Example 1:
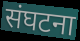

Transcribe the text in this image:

संघटना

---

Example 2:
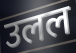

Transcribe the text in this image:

उलल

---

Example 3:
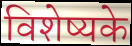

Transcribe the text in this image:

विशेष्यके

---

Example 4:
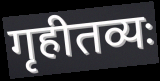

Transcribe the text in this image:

गृहीतव्यः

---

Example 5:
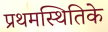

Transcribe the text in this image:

प्रथमस्थितिके